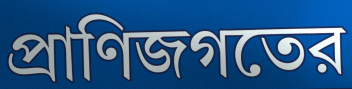
প্রাণিজগতের